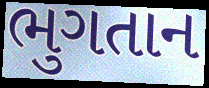
ભુગતાન